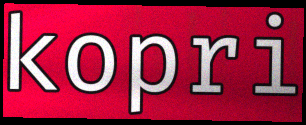
kopri